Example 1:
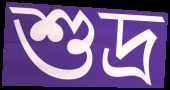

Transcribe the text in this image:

শুদ্র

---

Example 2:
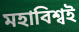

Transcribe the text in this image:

মহাবিশ্বই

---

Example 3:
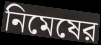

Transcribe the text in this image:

নিমেষের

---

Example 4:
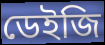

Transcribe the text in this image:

ডেইজি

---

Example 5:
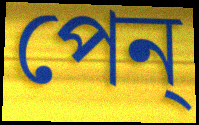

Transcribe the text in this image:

পেন্